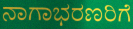
ನಾಗಾಭರಣರಿಗೆ